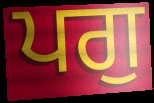
ਪਗੁ